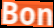
Bon